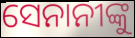
ସେନାନୀଙ୍କୁ